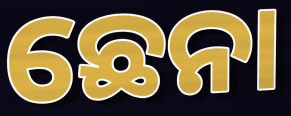
ଛେନା